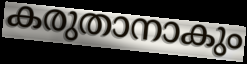
കരുതാനാകും